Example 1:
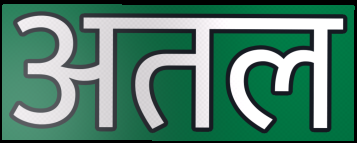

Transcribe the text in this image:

अतल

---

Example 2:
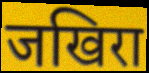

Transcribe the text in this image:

जखिरा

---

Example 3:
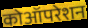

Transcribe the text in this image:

कोऑपरेशन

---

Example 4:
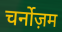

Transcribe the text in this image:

चर्नोज़म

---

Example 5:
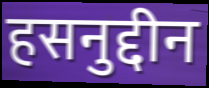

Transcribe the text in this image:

हसनुद्दीन